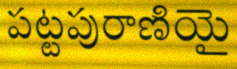
పట్టపురాణియై